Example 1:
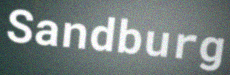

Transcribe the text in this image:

Sandburg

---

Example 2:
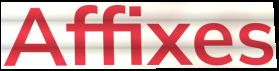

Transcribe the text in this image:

Affixes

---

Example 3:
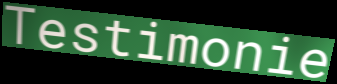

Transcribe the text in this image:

Testimonie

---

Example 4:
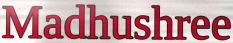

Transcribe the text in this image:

Madhushree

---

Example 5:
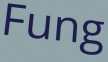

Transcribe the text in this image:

Fung